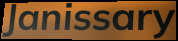
Janissary